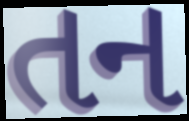
તન